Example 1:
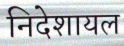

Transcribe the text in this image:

निदेशायल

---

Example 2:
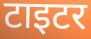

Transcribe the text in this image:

टाइटर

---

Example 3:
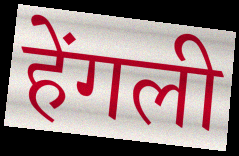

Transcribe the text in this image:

हेंगली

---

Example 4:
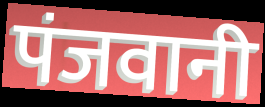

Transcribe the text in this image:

पंजवानी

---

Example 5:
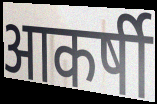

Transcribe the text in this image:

आकर्षी